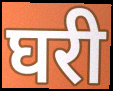
घरी